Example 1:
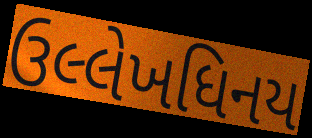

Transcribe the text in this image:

ઉલ્લેખધિનય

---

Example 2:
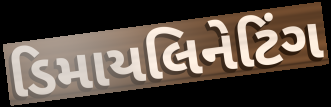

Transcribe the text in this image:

ડિમાયલિનેટિંગ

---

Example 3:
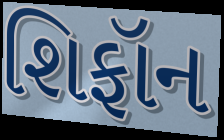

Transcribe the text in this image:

શિફૉન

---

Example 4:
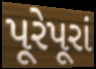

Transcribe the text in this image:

પૂરેપૂરાં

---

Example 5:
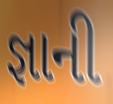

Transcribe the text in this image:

જ્ઞાની